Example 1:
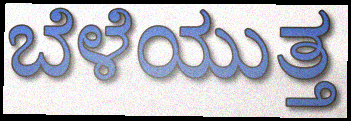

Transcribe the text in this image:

ಬೆಳೆಯುತ್ತ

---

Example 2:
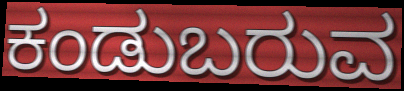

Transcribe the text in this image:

ಕಂಡುಬರುವ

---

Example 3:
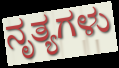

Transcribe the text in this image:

ನೃತ್ಯಗಳು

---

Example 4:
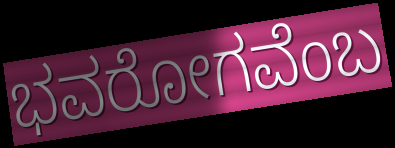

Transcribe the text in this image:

ಭವರೋಗವೆಂಬ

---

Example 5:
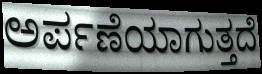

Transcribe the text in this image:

ಅರ್ಪಣೆಯಾಗುತ್ತದೆ